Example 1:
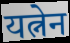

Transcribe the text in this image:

यत्नेन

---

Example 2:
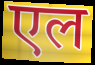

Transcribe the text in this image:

एल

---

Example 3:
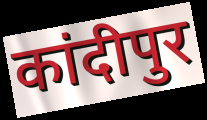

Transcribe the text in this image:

कांदीपुर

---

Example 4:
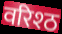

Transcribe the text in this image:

वरिश्ठ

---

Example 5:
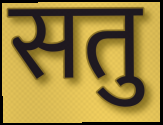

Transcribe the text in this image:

सतु